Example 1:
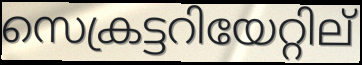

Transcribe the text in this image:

സെക്രട്ടറിയേറ്റില്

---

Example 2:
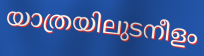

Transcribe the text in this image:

യാത്രയിലുടനീളം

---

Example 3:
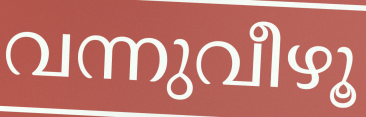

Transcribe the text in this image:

വന്നുവീഴൂ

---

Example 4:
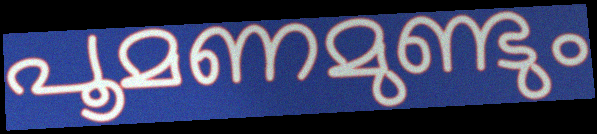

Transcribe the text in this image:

പൂമണമുണ്ടും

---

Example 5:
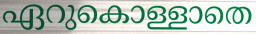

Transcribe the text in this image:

ഏറുകൊള്ളാതെ